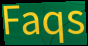
Faqs